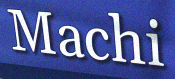
Machi